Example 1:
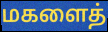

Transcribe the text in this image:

மகளைத்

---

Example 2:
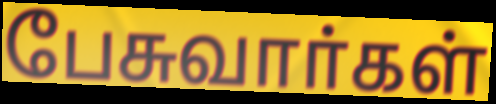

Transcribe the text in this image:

பேசுவார்கள்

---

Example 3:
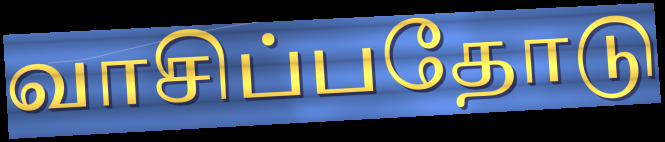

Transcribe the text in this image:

வாசிப்பதோடு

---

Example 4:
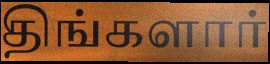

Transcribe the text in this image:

திங்களார்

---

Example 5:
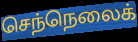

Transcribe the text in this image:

செந்நெலைக்